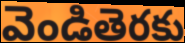
వెండితెరకు